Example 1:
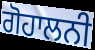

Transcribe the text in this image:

ਗੋਹਾਲਨੀ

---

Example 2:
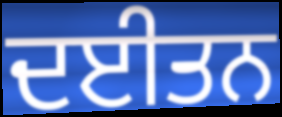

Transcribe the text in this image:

ਦਈਤਨ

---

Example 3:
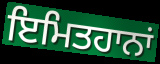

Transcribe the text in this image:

ਇਮਿਤਹਾਨਾਂ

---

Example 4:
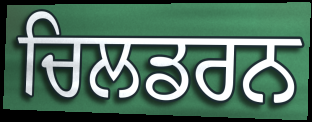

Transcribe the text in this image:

ਚਿਲਡਰਨ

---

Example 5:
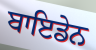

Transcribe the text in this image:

ਬਾਇਡੇਨ